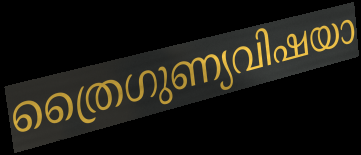
ത്രൈഗുണ്യവിഷയാ